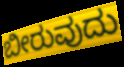
ಬೀರುವುದು